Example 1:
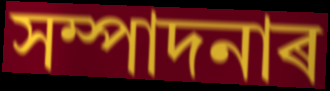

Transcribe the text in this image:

সম্পাদনাৰ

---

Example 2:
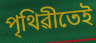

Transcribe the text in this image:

পৃথিৱীতেই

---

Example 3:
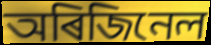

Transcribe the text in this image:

অৰিজিনেল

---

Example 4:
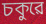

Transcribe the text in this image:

চকুৱে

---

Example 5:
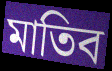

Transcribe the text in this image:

মাতিব